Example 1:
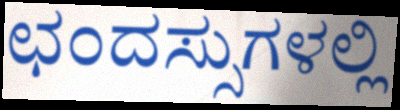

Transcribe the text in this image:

ಛಂದಸ್ಸುಗಳಲ್ಲಿ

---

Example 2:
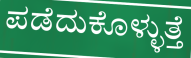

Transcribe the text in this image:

ಪಡೆದುಕೊಳ್ಳುತ್ತೆ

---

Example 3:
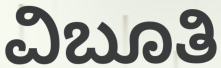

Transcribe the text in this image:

ವಿಬೂತಿ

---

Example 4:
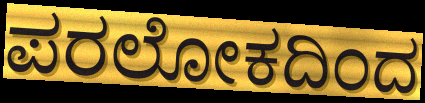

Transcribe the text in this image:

ಪರಲೋಕದಿಂದ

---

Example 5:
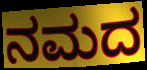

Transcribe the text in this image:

ನಮದ